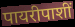
पायरीपाशीं